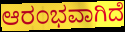
ಆರಂಭವಾಗಿದೆ